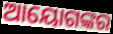
ଆୟୋଗଙ୍କର